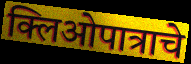
क्लिओपात्राचे